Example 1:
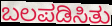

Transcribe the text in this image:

ಬಲಪಡಿಸಿತು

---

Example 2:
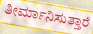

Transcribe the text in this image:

ತೀರ್ಮಾನಿಸುತ್ತಾರೆ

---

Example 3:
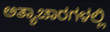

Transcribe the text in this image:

ಅತ್ಯಾಚಾರಗಳಲ್ಲಿ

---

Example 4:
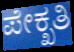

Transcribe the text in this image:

ಪೇಕ್ಖತಿ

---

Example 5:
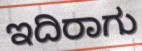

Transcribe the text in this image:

ಇದಿರಾಗು